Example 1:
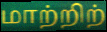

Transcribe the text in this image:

மாற்றிற்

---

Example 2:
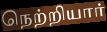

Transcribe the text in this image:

நெற்றியார்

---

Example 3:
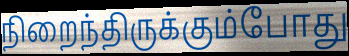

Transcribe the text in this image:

நிறைந்திருக்கும்போது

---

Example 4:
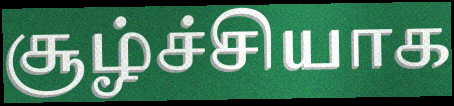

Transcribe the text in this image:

சூழ்ச்சியாக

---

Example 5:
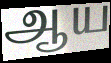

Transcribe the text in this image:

ஆய